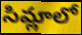
సిమ్లాలో